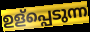
ഉള്പ്പെടുന്ന